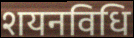
शयनविधि